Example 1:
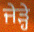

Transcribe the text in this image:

ਜੇੜ੍ਹੇ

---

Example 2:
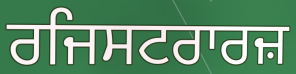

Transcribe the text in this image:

ਰਜਿਸਟਰਾਰਜ਼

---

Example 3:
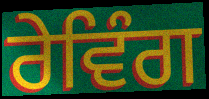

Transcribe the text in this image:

ਰੇਵਿੰਗ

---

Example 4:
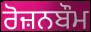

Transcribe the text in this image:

ਰੋਜ਼ਨਬੌਮ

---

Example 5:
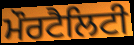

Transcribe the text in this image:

ਮੌਰਟੈਲਿਟੀ